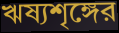
ঋষ্যশৃঙ্গের